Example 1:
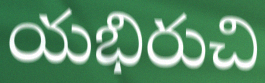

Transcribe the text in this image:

యభిరుచి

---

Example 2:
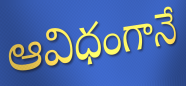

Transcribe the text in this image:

ఆవిధంగానే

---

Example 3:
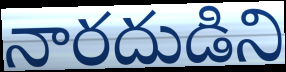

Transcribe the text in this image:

నారదుడిని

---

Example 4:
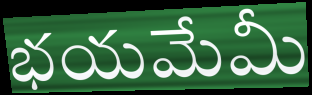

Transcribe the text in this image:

భయమేమీ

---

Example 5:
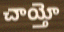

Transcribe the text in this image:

చాయ్తో